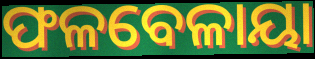
ଫଳବେଳାୟା